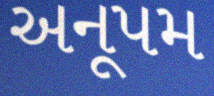
અનૂપમ